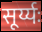
सूर्य्यः